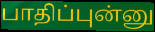
பாதிப்புன்னு